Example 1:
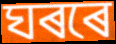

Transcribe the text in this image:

ঘৰৰে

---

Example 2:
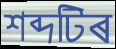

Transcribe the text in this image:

শব্দটিৰ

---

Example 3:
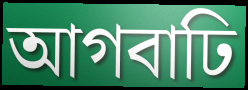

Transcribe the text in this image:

আগবাঢি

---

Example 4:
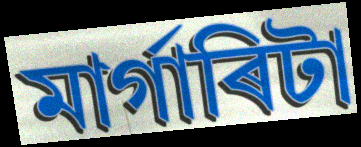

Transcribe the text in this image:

মাৰ্গাৰিটা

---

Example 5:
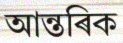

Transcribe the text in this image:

আন্তৰিক